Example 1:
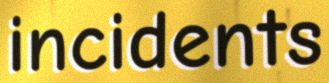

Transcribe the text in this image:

incidents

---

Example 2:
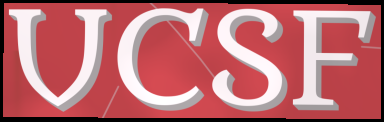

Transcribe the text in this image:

UCSF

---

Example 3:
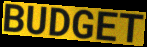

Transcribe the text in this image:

BUDGET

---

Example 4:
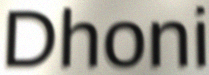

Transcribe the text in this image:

Dhoni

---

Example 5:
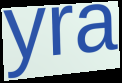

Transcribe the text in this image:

yra